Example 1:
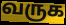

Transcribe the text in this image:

வருக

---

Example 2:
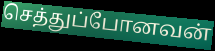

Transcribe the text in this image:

செத்துப்போனவன்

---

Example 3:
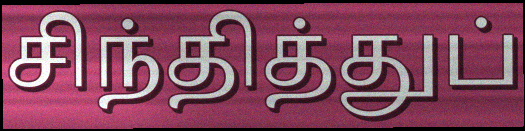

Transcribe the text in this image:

சிந்தித்துப்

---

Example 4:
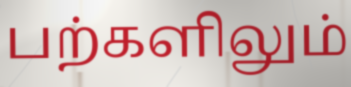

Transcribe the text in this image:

பற்களிலும்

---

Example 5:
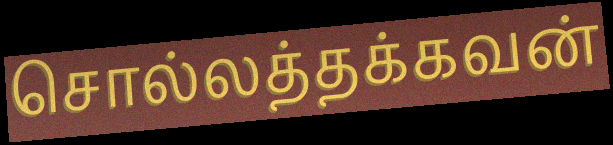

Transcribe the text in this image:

சொல்லத்தக்கவன்